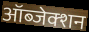
ऑब्‍जेक्‍शन